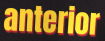
anterior